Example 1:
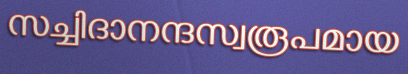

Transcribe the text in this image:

സച്ചിദാനന്ദസ്വരൂപമായ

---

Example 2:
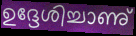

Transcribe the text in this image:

ഉദ്ദേശിച്ചാണു്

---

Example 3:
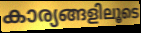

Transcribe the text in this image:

കാര്യങ്ങളിലൂടെ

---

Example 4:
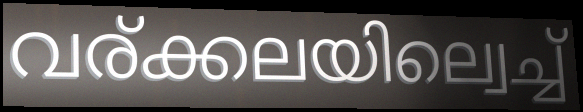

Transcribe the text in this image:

വര്ക്കലയില്വെച്ച്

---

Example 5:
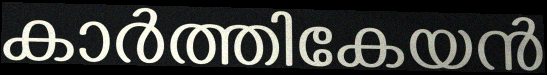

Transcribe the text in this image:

കാർത്തികേയൻ